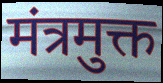
मंत्रमुक्त